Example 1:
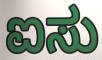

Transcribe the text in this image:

ಐಸು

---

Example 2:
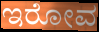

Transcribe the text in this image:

ಇರೋವ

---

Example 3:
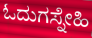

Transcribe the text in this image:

ಓದುಗಸ್ನೇಹಿ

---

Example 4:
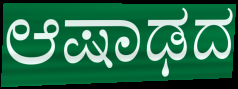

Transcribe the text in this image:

ಆಷಾಢದ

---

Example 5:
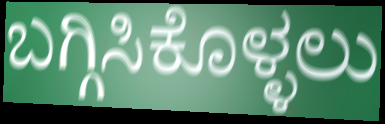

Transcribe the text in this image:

ಬಗ್ಗಿಸಿಕೊಳ್ಳಲು